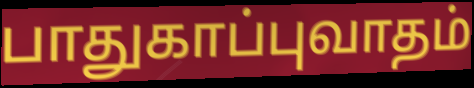
பாதுகாப்புவாதம்